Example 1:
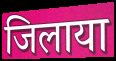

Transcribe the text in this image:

जिलाया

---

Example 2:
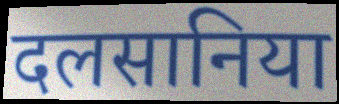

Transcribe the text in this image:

दलसानिया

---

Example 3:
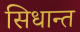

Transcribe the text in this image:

सिधान्त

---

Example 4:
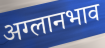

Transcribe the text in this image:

अग्लानभाव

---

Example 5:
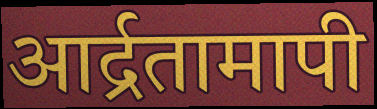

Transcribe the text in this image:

आर्द्रतामापी